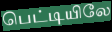
பெட்டியிலே